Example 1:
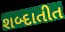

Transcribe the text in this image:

શબ્દાતીત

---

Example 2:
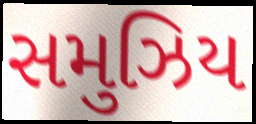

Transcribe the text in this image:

સમુઝિય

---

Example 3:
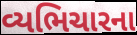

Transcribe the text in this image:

વ્યભિચારના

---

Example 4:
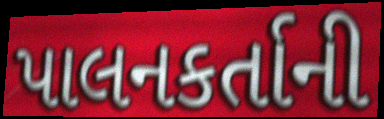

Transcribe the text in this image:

પાલનકર્તાની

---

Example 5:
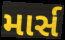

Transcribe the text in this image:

માર્સ